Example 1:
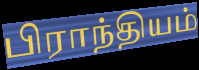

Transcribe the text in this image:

பிராந்தியம்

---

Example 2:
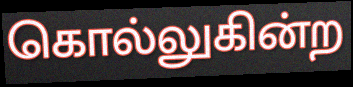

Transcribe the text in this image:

கொல்லுகின்ற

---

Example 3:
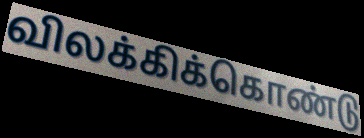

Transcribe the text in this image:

விலக்கிக்கொண்டு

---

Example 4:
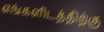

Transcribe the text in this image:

எங்களிடத்திற்கு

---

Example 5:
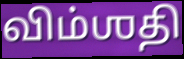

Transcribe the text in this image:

விம்ஶதி